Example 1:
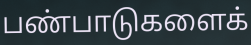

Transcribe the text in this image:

பண்பாடுகளைக்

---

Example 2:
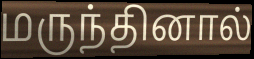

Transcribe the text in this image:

மருந்தினால்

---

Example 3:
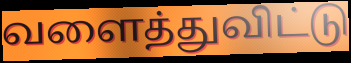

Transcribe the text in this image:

வளைத்துவிட்டு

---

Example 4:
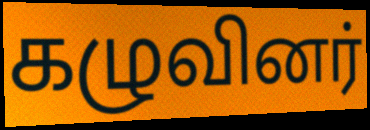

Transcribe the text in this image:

கழுவினர்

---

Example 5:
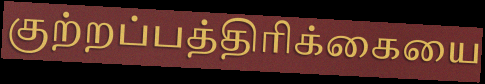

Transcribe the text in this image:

குற்றப்பத்திரிக்கையை